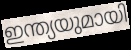
ഇന്ത്യയുമായി